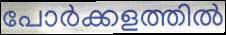
പോർക്കളത്തിൽ